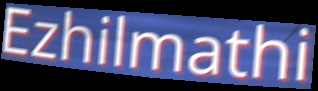
Ezhilmathi